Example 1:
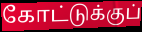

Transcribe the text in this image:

கோட்டுக்குப்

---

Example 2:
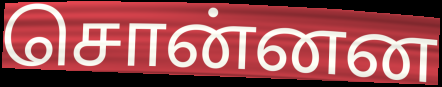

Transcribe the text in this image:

சொன்னன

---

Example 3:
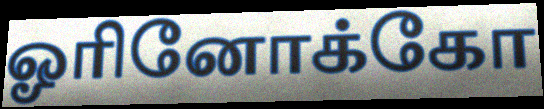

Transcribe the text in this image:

ஓரினோக்கோ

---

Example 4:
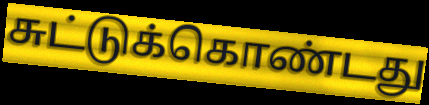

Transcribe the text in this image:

சுட்டுக்கொண்டது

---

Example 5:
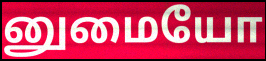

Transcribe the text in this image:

னுமையோ